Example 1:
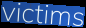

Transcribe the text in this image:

victims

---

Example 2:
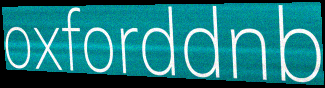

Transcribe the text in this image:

oxforddnb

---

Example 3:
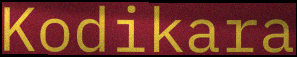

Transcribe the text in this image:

Kodikara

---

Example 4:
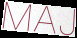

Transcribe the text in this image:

MAJ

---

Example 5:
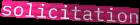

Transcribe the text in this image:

solicitation